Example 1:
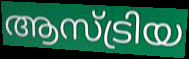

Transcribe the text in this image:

ആസ്ട്രിയ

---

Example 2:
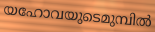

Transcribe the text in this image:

യഹോവയുടെമുമ്പിൽ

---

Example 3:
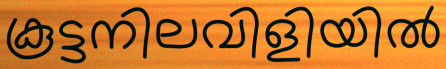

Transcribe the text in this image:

കൂട്ടനിലവിളിയിൽ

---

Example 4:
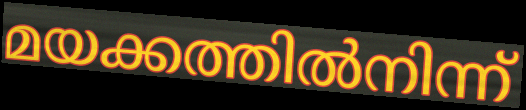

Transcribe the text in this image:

മയക്കത്തിൽനിന്ന്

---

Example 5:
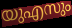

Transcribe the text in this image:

യുഎസും